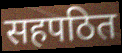
सहपठित